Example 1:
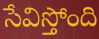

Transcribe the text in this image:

సేవిస్తోంది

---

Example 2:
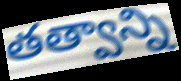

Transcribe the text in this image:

తత్వాన్ని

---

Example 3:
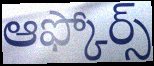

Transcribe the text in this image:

ఆఫ్కోర్స్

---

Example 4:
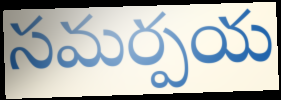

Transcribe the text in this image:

సమర్పయ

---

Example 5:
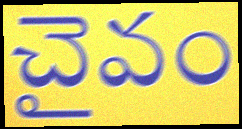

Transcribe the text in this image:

చైవం